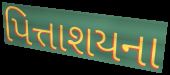
પિત્તાશયના